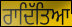
ਰਾਦਿੱਤਿਆ